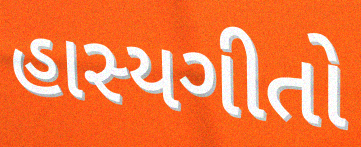
હાસ્યગીતો